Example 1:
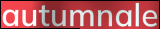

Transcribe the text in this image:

autumnale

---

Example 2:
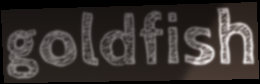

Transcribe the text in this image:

goldfish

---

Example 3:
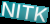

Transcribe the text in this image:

NITK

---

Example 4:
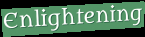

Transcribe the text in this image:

Enlightening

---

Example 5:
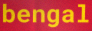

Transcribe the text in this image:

bengal